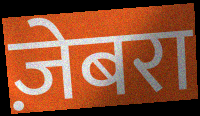
ज़ेबरा